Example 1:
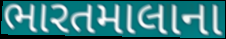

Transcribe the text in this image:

ભારતમાલાના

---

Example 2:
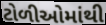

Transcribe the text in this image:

ટોળીઓમાંથી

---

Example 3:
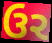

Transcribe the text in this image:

ઉર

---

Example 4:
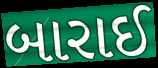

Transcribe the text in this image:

બારાઈ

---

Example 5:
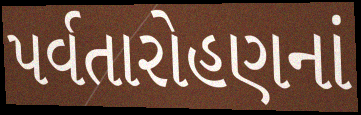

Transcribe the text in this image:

પર્વતારોહણનાં